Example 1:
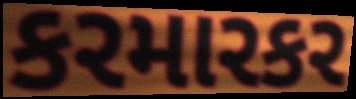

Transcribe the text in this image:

કરમારકર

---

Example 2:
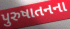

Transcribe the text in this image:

પુરુષાતનના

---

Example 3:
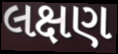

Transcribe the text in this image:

લક્ષણ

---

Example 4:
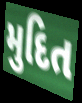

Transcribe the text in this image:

મુદિત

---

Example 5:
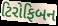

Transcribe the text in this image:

ટિરોફિબન